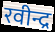
रवीन्द्र